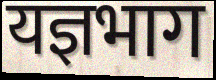
यज्ञभाग